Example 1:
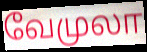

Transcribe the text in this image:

வேமுலா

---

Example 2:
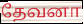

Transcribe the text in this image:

தேவனா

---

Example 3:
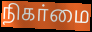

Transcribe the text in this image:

நிகர்மை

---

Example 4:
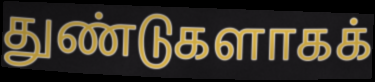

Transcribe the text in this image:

துண்டுகளாகக்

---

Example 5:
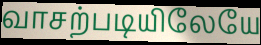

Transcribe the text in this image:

வாசற்படியிலேயே